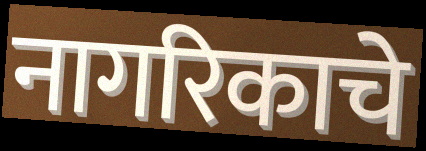
नागरिकाचे